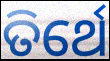
ତିର୍ଥେ